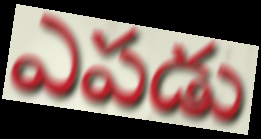
ఎపడు